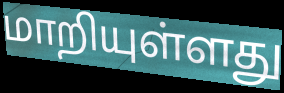
மாறியுள்ளது